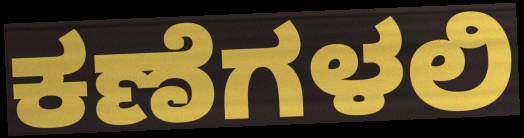
ಕಣೆಗಳಲಿ